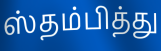
ஸ்தம்பித்து